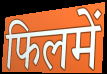
फिलमें